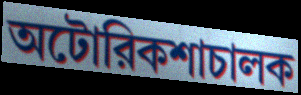
অটোরিকশাচালক